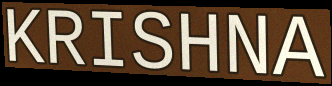
KRISHNA